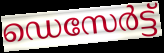
ഡെസേർട്ട്